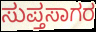
ಸುಪ್ತಸಾಗರ